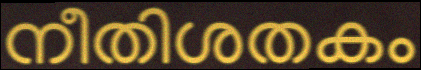
നീതിശതകം